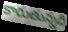
కారుతున్నది